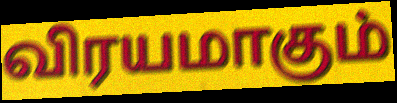
விரயமாகும்